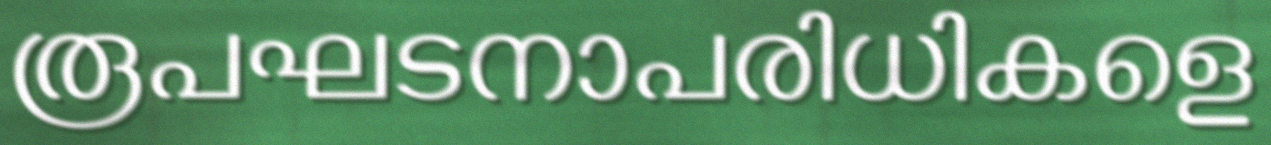
രൂപഘടനാപരിധികളെ